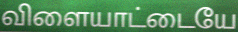
விளையாட்டையே